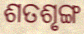
ଶତଶୃଙ୍ଗ